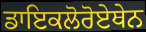
ਡਾਇਕਲੋਰੋਏਥੇਨ